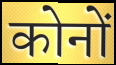
कोनों